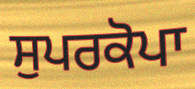
ਸੁਪਰਕੋਪਾ